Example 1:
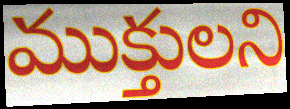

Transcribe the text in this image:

ముక్తులని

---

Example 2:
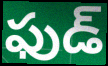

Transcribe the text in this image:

ఫుడ్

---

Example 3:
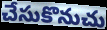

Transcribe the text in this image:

చేసుకొనుచు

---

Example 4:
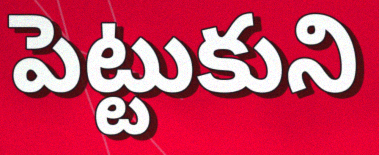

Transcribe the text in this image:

పెట్టుకుని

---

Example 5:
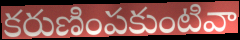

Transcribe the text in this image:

కరుణింపకుంటివా